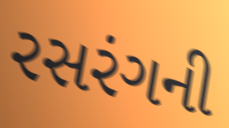
રસરંગની